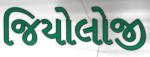
જિયોલોજી